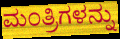
ಮಂತ್ರಿಗಳನ್ನು